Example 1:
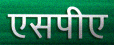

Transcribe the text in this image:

एसपीए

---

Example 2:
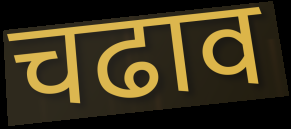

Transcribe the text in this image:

चढाव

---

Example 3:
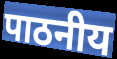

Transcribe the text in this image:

पाठनीय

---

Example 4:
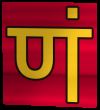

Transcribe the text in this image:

णं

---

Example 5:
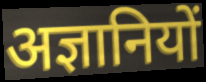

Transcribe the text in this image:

अज्ञानियों